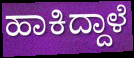
ಹಾಕಿದ್ದಾಳೆ